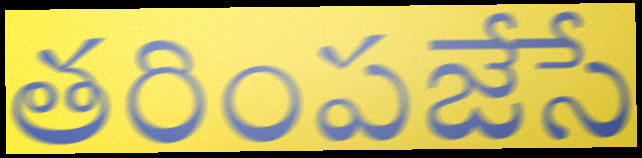
తరింపజేసే